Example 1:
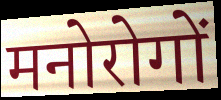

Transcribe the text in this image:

मनोरोगों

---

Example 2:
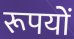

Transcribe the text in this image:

रूपयों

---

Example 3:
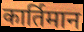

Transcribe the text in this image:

कार्तिमान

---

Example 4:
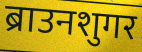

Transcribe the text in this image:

ब्राउनशुगर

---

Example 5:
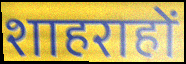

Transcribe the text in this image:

शाहराहों